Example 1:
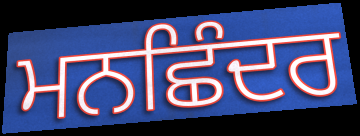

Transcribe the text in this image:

ਮਨਛਿੰਦਰ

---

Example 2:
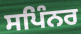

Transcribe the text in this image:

ਸਪਿੰਨਰ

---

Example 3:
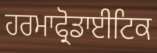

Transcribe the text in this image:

ਹਰਮਾਫ੍ਰੋਡਾਈਟਿਕ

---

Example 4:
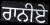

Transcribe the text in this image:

ਰਾਨੀਏ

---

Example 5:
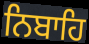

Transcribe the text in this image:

ਨਿਬਾਹਿ